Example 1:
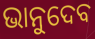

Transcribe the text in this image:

ଭାନୁଦେବ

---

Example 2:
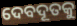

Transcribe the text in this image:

ଦେବଦୂତକୁ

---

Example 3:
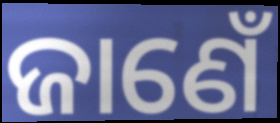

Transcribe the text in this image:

ଜାଣେଁ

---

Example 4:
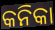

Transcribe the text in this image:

କନିକା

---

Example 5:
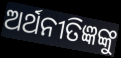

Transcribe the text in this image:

ଅର୍ଥନୀତିଜ୍ଞଙ୍କୁ